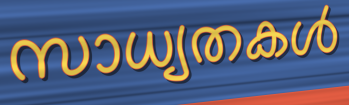
സാധ്യതകൾ